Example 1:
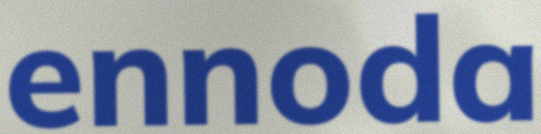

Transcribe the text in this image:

ennoda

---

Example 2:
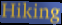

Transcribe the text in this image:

Hiking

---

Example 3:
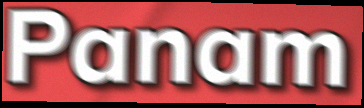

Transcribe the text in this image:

Panam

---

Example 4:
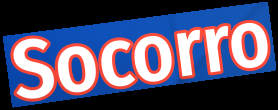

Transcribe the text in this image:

Socorro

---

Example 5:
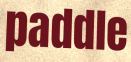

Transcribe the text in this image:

paddle